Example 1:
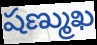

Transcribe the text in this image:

షణ్ముఖ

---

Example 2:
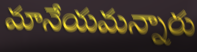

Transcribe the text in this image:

మానేయమన్నారు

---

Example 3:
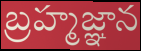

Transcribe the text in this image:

బ్రహ్మజ్ఞాన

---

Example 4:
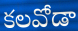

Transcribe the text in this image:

కలవోడా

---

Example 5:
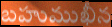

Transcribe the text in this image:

బహుముఖీన